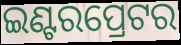
ଇଣ୍ଟରପ୍ରେଟର